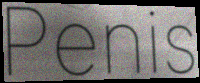
Penis